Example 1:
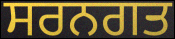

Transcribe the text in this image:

ਸਰਨਗਤ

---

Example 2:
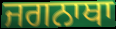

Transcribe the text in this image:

ਜਗਨਾਥਾ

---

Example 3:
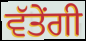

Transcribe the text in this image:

ਵੱਤੇਂਗੀ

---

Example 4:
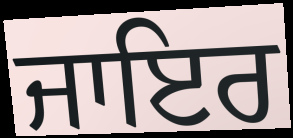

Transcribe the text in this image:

ਜਾਇਰ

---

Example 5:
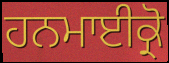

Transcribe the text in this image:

ਹਨਮਾਈਕ੍ਰੋ